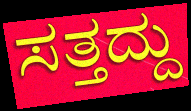
ಸತ್ತದ್ದು